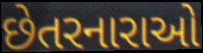
છેતરનારાઓ